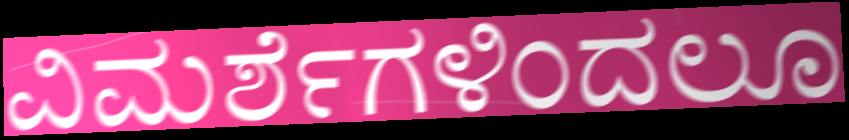
ವಿಮರ್ಶೆಗಳಿಂದಲೂ